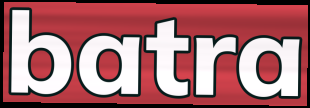
batra